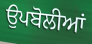
ਉਪਬੋਲੀਆਂ